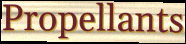
Propellants